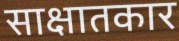
साक्षातकार